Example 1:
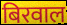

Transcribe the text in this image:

बिरवाल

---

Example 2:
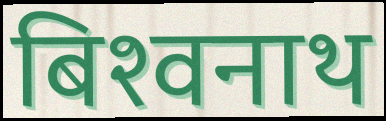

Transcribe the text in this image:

बिश्वनाथ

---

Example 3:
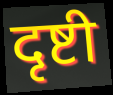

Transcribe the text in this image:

दृष्टी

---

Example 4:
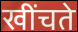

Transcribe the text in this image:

खींचते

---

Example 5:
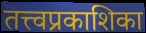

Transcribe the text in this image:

तत्त्वप्रकाशिका